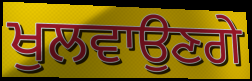
ਖੁਲਵਾਉਣਗੇ